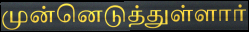
முன்னெடுத்துள்ளார்